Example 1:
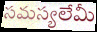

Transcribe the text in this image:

సమస్యలేమీ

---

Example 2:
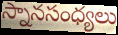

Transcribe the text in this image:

స్నానసంధ్యలు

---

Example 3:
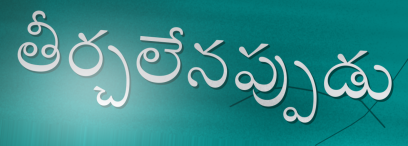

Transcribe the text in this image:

తీర్చలేనప్పుడు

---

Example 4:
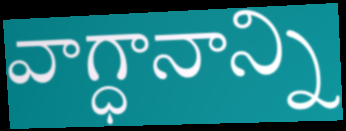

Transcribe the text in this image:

వాగ్ధానాన్ని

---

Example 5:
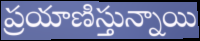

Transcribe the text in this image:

ప్రయాణిస్తున్నాయి